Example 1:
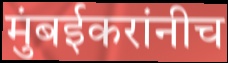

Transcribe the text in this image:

मुंबईकरांनीच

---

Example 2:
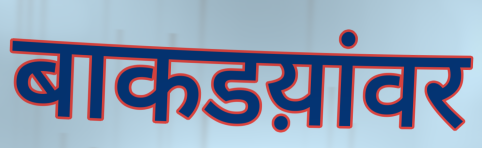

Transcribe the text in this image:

बाकडय़ांवर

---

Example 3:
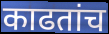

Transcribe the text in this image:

काढतांच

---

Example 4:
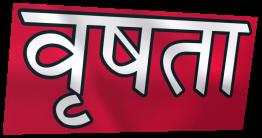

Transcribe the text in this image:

वृषता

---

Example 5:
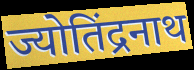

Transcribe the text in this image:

ज्योतिंद्रनाथ